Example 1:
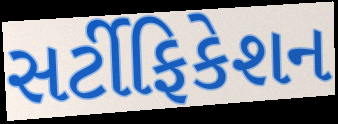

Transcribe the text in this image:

સર્ટીફિકેશન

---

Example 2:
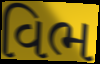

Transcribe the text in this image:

વિભ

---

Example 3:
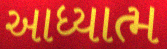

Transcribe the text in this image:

આધ્યાત્મ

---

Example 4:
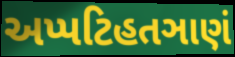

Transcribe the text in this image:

અપ્પટિહતઞાણં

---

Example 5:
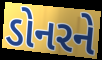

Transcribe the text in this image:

ડોનરને